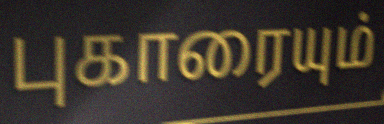
புகாரையும்